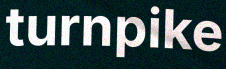
turnpike